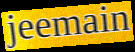
jeemain